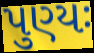
પુણ્યઃ